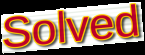
Solved